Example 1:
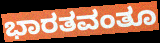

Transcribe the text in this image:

ಭಾರತವಂತೂ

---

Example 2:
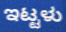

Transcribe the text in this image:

ಇಟ್ಟಳು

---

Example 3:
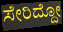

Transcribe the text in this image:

ಸೇರಿದ್ದೋ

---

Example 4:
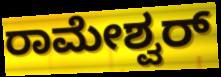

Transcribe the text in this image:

ರಾಮೇಶ್ವರ್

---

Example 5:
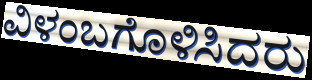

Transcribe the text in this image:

ವಿಳಂಬಗೊಳಿಸಿದರು